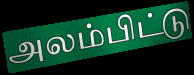
அலம்பிட்டு